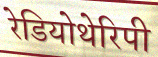
रेडियोथेरिपी